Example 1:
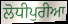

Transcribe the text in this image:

ਲੋਧੀਪੁਰੀਆ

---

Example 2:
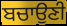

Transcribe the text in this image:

ਬਚਾਉਣੀ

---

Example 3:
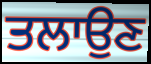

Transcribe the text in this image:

ਤਲਾਉਣ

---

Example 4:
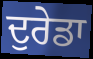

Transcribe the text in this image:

ਦੁਰੇਡਾ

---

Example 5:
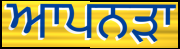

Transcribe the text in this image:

ਆਪਨੜਾ